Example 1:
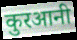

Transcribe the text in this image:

कुरआनी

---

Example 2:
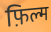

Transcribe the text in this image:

फ़िल्म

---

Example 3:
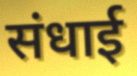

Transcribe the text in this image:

संधाई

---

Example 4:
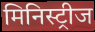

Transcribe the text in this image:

मिनिस्ट्रीज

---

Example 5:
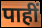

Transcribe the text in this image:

पाहीं